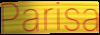
Parisa